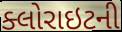
ક્લોરાઇટની